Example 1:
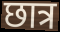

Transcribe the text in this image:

छात्र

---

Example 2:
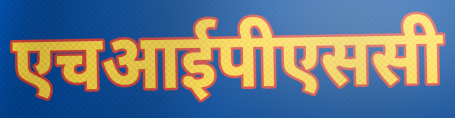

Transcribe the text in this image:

एचआईपीएससी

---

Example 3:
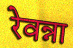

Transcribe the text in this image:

रेवन्ना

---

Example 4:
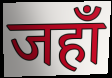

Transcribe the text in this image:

जहाँ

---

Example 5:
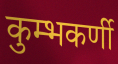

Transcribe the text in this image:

कुम्भकर्णी